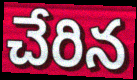
చేరిన